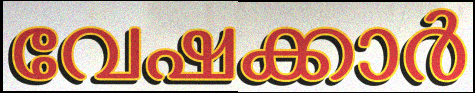
വേഷക്കാർ